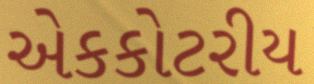
એકકોટરીય